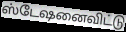
ஸ்டேஷனைவிட்டு